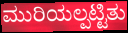
ಮುರಿಯಲ್ಪಟ್ಟಿತು